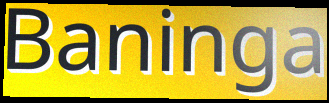
Baninga